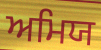
ਅਮਿਯ